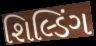
શિલ્ડિંગ